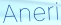
Aneri